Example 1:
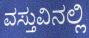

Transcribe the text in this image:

ವಸ್ತುವಿನಲ್ಲಿ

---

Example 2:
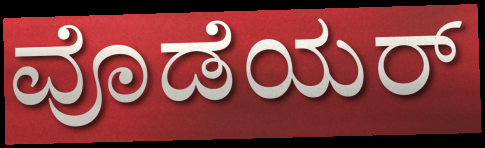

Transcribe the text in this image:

ವೊಡೆಯರ್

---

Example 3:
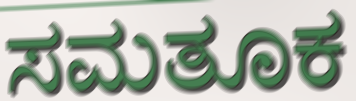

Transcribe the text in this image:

ಸಮತೂಕ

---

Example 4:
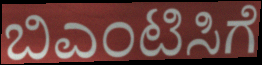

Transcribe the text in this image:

ಬಿಎಂಟಿಸಿಗೆ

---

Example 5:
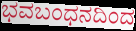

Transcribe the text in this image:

ಭವಬಂಧನದಿಂದ